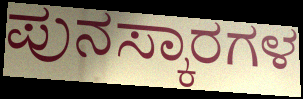
ಪುನಸ್ಕಾರಗಳ